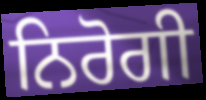
ਨਿਰੋਗੀ